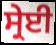
ਸ੍ਰੇਈ